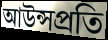
আউন্সপ্রতি